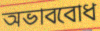
অভাববোধ